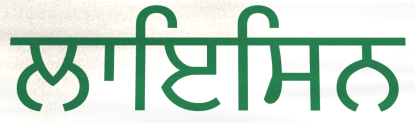
ਲਾਇਸਿਨ